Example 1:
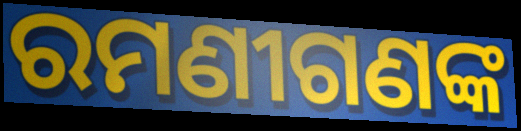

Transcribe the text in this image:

ରମଣୀଗଣଙ୍କ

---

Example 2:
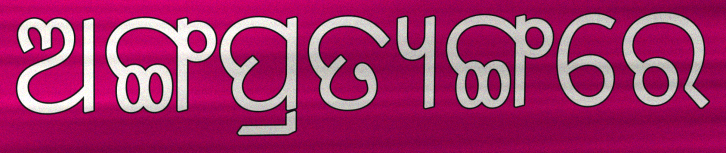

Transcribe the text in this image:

ଅଙ୍ଗପ୍ରତ୍ୟଙ୍ଗରେ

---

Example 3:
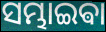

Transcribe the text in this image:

ସମ୍ଭାଇଵା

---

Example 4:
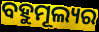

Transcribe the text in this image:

ବହୁମୂଲ୍ୟର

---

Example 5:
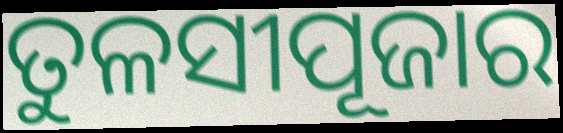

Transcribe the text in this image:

ତୁଳସୀପୂଜାର